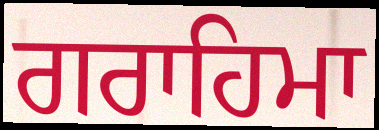
ਗਰਾਹਿਮਾ